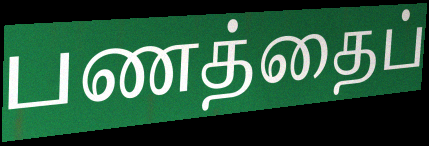
பணத்தைப்